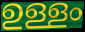
ഉള്ളം